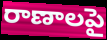
రాణాలపై